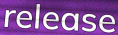
release